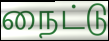
நைட்டு